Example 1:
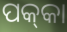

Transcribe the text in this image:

ପକ୍‍କା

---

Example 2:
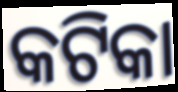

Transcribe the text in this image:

କଟିକା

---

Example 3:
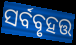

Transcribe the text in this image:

ସର୍ବବୃହତ୍ତ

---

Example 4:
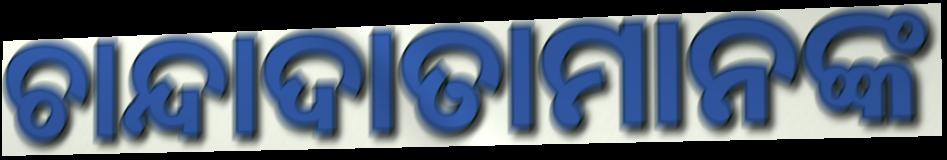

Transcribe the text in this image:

ଚାନ୍ଦାଦାତାମାନଙ୍କ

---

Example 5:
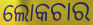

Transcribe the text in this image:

ଲୋକଚାର